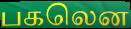
பகலென